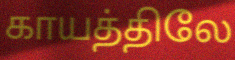
காயத்திலே